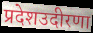
प्रदेशउदीरणा